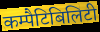
कम्पैटिबिलिटी